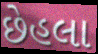
છેહલા